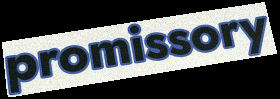
promissory